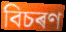
বিচৰণ